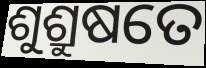
ଶୁଶ୍ରୁଷତେ